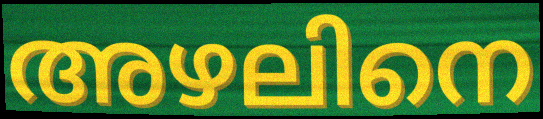
അഴലിനെ